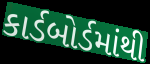
કાર્ડબોર્ડમાંથી